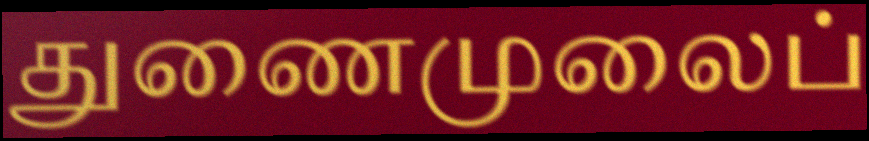
துணைமுலைப்